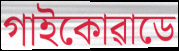
গাইকোৱাডে